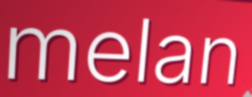
melan